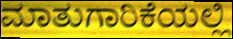
ಮಾತುಗಾರಿಕೆಯಲ್ಲಿ